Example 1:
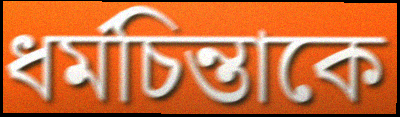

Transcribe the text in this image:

ধর্মচিন্তাকে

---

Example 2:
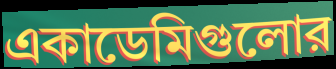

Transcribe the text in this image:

একাডেমিগুলোর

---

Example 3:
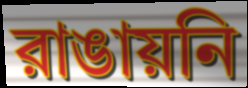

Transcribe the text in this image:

রাঙায়নি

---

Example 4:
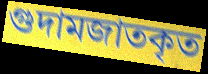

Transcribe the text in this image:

গুদামজাতকৃত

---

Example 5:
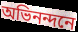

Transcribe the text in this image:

অভিনন্দনে